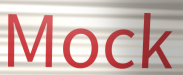
Mock